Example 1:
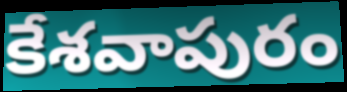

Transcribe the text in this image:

కేశవాపురం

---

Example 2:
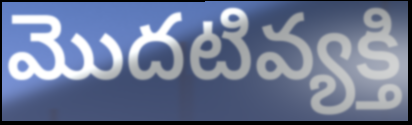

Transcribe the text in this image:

మొదటివ్యక్తి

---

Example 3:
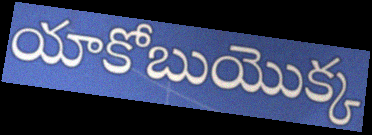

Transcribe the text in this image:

యాకోబుయొక్క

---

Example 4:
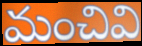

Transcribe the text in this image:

మంచివి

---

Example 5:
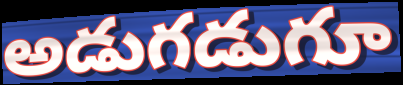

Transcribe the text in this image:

అడుగడుగూ